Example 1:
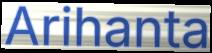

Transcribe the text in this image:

Arihanta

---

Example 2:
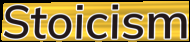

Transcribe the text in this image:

Stoicism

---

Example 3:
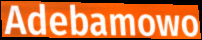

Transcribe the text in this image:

Adebamowo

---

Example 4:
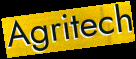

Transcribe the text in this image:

Agritech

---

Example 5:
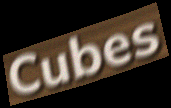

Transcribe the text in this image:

Cubes